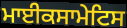
ਮਾਈਕਸਾਮੇਟਿਸ